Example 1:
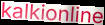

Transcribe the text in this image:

kalkionline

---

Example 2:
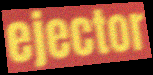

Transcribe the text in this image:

ejector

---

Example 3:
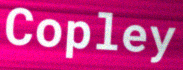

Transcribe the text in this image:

Copley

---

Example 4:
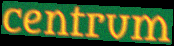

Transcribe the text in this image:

centrum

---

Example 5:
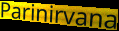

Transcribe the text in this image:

Parinirvana